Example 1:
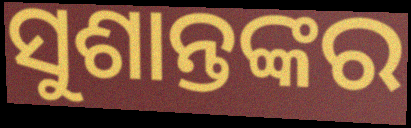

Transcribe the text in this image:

ସୁଶାନ୍ତଙ୍କର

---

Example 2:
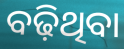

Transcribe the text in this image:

ବଢ଼ିଥିବା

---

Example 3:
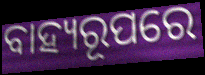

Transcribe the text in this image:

ବାହ୍ୟରୂପରେ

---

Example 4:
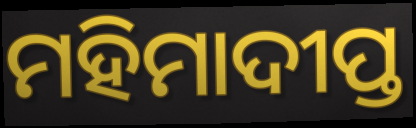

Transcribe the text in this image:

ମହିମାଦୀପ୍ତ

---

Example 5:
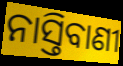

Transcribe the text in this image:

ନାସ୍ତିବାଣୀ